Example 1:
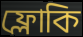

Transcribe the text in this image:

ফ্লোকি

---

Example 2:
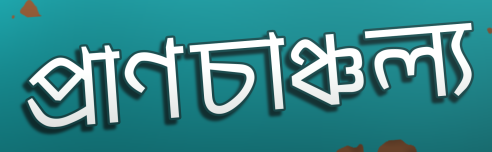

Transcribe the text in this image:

প্রাণচাঞ্চল্য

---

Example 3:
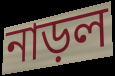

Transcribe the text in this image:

নাড়ল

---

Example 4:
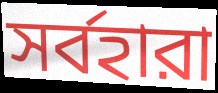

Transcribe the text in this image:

সর্বহারা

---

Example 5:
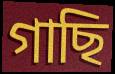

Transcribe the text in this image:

গাছি